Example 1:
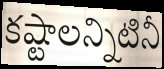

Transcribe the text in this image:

కష్టాలన్నిటినీ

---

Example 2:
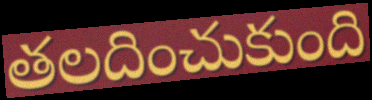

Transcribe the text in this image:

తలదించుకుంది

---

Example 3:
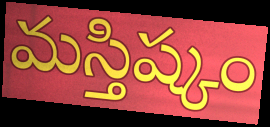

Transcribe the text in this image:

మస్తిష్కం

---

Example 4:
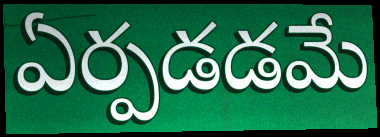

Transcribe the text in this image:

ఏర్పడడమే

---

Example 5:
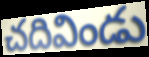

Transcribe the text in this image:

చదివిండు